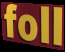
foll